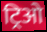
ट्रिओ